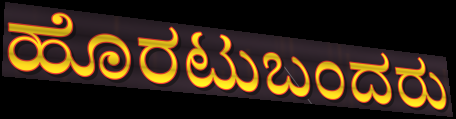
ಹೊರಟುಬಂದರು